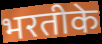
भरतीके